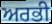
ਅਰਭੀ